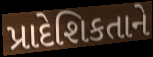
પ્રાદેશિકતાને